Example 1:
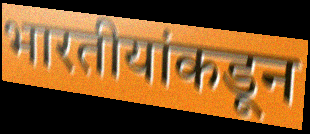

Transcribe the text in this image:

भारतीयांकडून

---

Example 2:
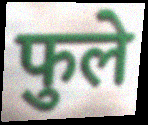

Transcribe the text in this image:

फुले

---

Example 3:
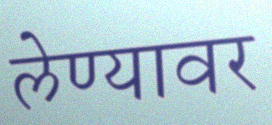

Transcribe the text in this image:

लेण्यावर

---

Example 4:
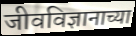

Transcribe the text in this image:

जीवविज्ञानाच्या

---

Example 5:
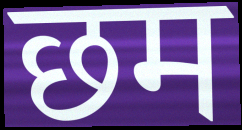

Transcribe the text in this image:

छम